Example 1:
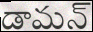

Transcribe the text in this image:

డామన్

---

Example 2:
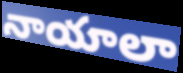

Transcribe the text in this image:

నాయాలా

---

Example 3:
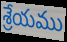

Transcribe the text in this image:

శ్రేయము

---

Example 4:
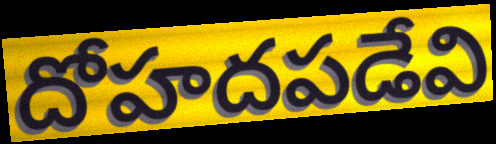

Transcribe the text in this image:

దోహదపడేవి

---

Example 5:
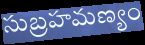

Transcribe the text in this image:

సుబ్రహమణ్యం